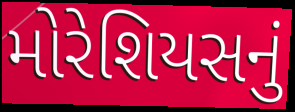
મોરેશિયસનું